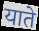
याते